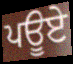
ਪਊਏ